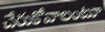
చేరుకోవాలంటూ